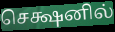
செக்ஷனில்